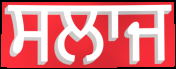
ਸਲਾਜ